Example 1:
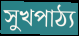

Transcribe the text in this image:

সুখপাঠ্য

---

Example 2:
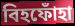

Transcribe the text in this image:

বিহফোঁহা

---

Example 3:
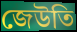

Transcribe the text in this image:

জেউতি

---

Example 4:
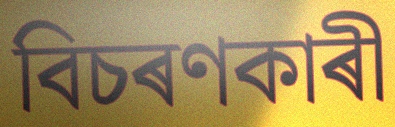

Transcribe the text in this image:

বিচৰণকাৰী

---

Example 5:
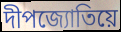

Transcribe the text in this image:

দীপজ্যোতিয়ে